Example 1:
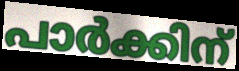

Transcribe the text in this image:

പാർക്കിന്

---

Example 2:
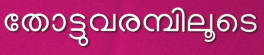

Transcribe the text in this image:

തോട്ടുവരമ്പിലൂടെ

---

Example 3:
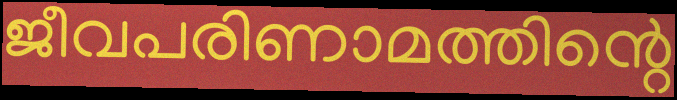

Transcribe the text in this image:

ജീവപരിണാമത്തിന്റെ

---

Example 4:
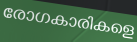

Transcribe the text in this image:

രോഗകാരികളെ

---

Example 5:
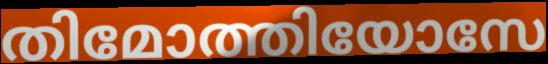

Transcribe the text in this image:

തിമോത്തിയോസേ